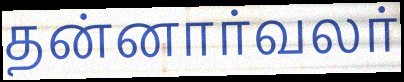
தன்னார்வலர்